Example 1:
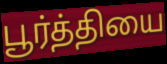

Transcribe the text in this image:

பூர்த்தியை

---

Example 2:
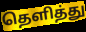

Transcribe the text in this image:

தெளித்து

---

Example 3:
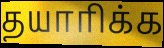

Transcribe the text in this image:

தயாரிக்க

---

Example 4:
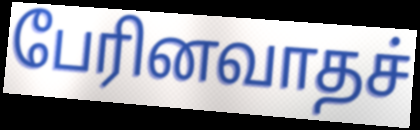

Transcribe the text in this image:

பேரினவாதச்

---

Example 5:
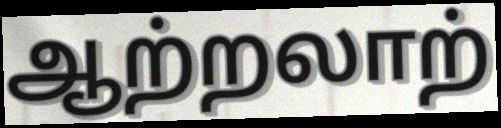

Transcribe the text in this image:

ஆற்றலாற்